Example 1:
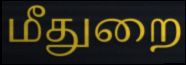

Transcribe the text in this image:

மீதுறை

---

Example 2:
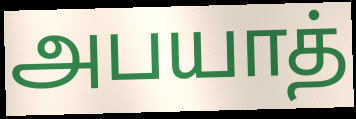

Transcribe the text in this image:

அபயாத்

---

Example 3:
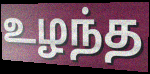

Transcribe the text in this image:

உழந்த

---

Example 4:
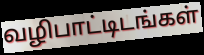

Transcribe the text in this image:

வழிபாட்டிடங்கள்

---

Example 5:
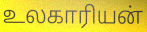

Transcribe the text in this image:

உலகாரியன்